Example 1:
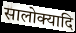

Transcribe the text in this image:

सालोक्यादि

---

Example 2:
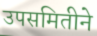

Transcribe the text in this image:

उपसमितीने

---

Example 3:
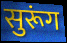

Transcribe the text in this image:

सुरूंग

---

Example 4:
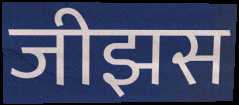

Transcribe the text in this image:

जीझस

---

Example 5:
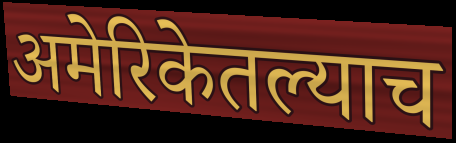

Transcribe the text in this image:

अमेरिकेतल्याच